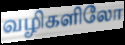
வழிகளிலோ